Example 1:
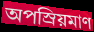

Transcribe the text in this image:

অপস্রিয়মাণ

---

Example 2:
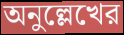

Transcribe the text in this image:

অনুল্লেখের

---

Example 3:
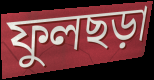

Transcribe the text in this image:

ফুলছড়া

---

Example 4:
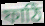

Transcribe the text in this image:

ফাঠি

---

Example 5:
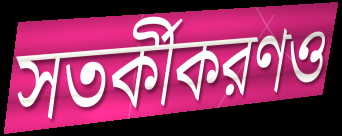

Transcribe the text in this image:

সতর্কীকরণও